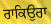
ਰਾਕਿਉਰਾ